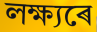
লক্ষ্যৰে